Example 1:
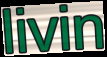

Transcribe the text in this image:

livin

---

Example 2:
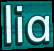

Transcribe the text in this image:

lia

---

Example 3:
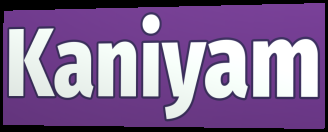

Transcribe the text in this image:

Kaniyam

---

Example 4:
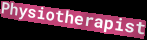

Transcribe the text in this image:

Physiotherapist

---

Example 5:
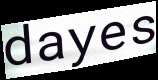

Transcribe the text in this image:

dayes